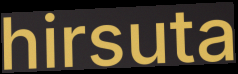
hirsuta